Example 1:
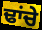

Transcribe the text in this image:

ਢਾਂਚੇ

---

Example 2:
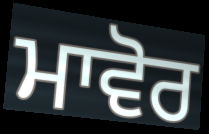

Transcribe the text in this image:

ਮਾਵੋਰ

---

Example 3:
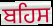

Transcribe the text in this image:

ਬਹਿਸ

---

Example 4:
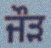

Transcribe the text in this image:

ਜੌੜ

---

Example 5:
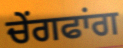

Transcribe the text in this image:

ਚੇਂਗਫਾਂਗ